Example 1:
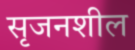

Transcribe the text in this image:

सृजनशील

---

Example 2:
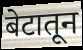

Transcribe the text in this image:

बेटातून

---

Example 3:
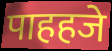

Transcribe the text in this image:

पाहहजे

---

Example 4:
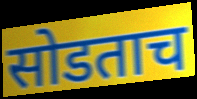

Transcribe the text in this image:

सोडताच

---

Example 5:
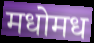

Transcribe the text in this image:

मधोमध